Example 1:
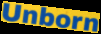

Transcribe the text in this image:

Unborn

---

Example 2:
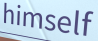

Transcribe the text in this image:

himself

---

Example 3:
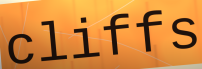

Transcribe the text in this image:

cliffs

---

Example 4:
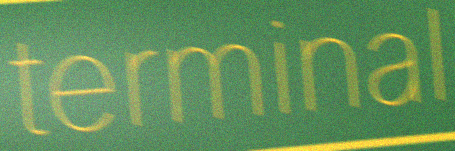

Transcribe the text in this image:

terminal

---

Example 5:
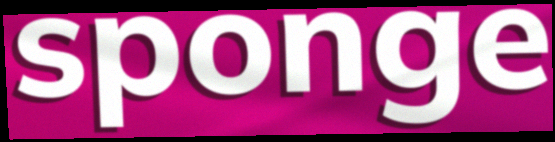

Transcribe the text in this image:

sponge